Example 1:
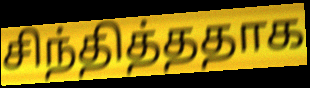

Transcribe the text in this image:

சிந்தித்ததாக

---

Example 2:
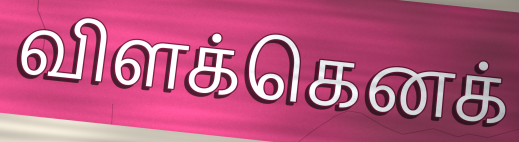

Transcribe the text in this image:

விளக்கெனக்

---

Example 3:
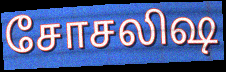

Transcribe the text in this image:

சோசலிஷ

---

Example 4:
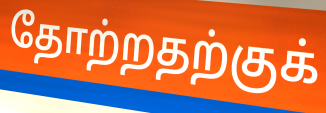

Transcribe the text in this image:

தோற்றதற்குக்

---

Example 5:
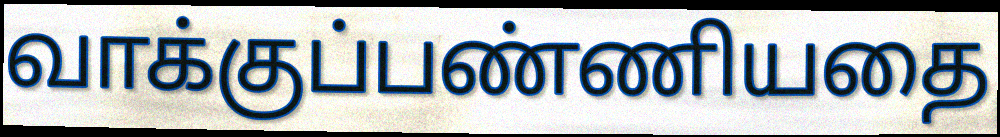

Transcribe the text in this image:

வாக்குப்பண்ணியதை